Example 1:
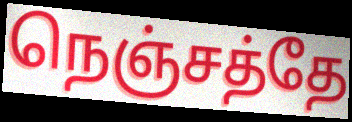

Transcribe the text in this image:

நெஞ்சத்தே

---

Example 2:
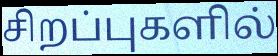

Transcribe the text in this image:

சிறப்புகளில்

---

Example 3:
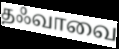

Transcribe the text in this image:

தஃவாவை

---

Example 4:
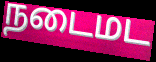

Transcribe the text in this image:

நடைமட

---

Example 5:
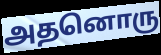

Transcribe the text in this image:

அதனொரு